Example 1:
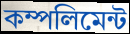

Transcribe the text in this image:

কম্পলিমেন্ট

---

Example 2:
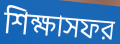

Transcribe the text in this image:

শিক্ষাসফর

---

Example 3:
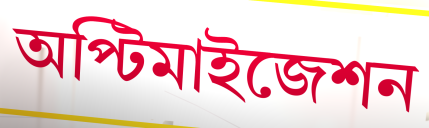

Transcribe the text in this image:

অপ্টিমাইজেশন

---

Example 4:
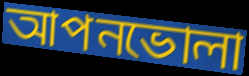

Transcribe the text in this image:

আপনভোলা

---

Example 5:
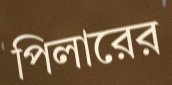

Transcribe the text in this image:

পিলারের